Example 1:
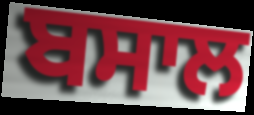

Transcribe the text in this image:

ਬਸਾਲ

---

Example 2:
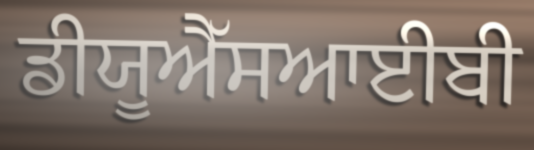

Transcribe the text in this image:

ਡੀਯੂਐੱਸਆਈਬੀ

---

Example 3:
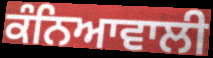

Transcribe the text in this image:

ਕੰਨਿਆਵਾਲੀ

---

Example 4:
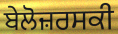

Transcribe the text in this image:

ਬੇਲੋਜ਼ਰਸਕੀ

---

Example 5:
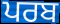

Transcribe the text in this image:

ਪਰਬ